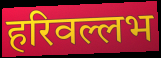
हरिवल्लभ